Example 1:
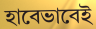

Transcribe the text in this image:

হাবেভাবেই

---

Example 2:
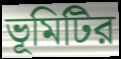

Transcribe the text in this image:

ভূমিটির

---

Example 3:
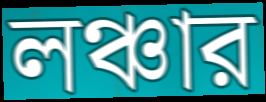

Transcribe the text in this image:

লঞ্চার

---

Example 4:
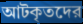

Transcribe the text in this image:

আটকৃতদের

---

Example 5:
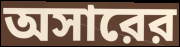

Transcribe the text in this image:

অসারের